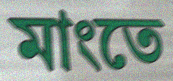
মাংতে